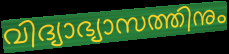
വിദ്യാഭ്യാസത്തിനും